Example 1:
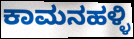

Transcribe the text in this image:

ಕಾಮನಹಳ್ಳಿ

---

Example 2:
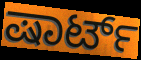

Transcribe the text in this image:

ಷಾರ್ಟ್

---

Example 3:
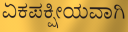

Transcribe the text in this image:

ಏಕಪಕ್ಷೀಯವಾಗಿ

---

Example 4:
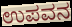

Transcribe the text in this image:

ಉಪವನ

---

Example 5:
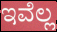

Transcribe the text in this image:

ಇವೆಲ್ಲ